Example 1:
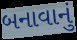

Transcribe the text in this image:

બનાવાનું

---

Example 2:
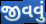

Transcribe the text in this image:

જીવવું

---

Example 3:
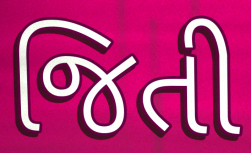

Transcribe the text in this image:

જિતી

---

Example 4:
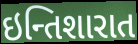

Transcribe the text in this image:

ઇન્તિશારાત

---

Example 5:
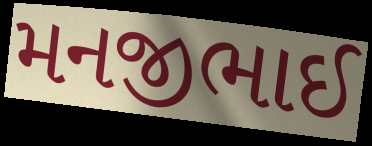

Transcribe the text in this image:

મનજીભાઈ